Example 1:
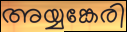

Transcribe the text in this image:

അയ്യങ്കേരി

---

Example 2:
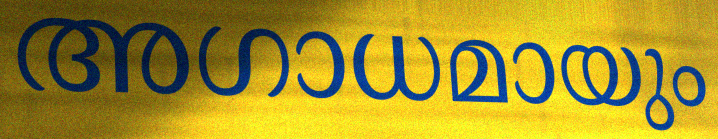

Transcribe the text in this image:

അഗാധമായും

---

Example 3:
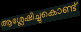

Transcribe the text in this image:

ആശ്ലേഷിച്ചുകൊണ്ട്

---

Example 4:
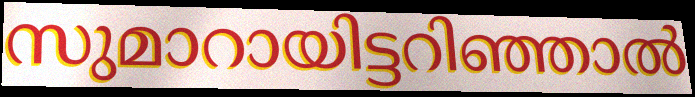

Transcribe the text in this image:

സുമാറായിട്ടറിഞ്ഞാൽ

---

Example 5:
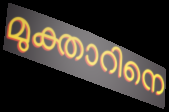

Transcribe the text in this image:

മുക്താറിനെ